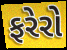
ફરેરો